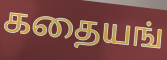
கதையங்